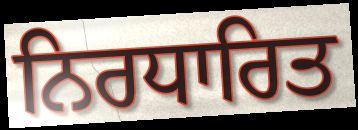
ਨਿਰਧਾਰਿਤ